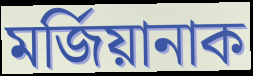
মৰ্জিয়ানাক